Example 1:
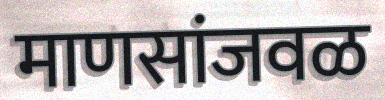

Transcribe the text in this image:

माणसांजवळ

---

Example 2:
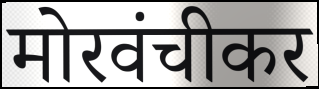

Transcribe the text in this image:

मोरवंचीकर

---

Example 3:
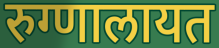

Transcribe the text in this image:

रुग्णालायत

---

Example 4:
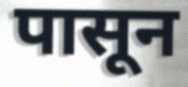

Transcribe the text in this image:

पासून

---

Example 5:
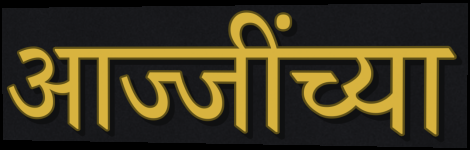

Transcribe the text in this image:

आज्जींच्या